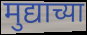
मुद्याच्या